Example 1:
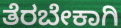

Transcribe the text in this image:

ತೆರಬೇಕಾಗಿ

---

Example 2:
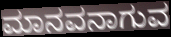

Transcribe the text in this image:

ಮಾನವನಾಗುವ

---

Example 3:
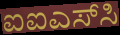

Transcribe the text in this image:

ಐಐಎಸ್‌ಸಿ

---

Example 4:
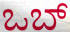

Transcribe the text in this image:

ಒಬ್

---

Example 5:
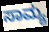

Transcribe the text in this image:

ಸಾಮ್ಯ